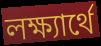
লক্ষ্যার্থে